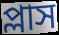
প্লাস